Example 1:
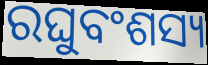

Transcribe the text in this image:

ରଘୁବଂଶସ୍ୟ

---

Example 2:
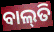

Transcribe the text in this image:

ବାଲ୍‌ତି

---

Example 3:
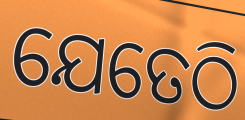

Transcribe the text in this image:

ଯେତେଠି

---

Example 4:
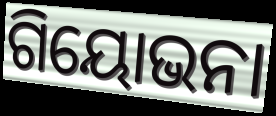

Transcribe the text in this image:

ଗିୟୋଭନା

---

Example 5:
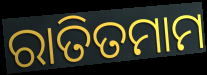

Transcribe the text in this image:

ରାତିତମାମ